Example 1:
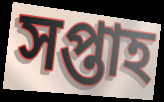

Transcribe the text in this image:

সপ্তাহ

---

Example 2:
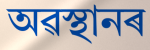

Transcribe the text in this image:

অৱস্থানৰ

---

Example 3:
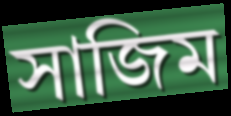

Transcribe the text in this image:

সাজিম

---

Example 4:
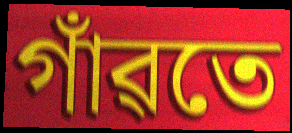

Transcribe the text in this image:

গাঁৱতে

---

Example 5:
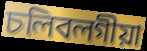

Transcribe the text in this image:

চলিবলগীয়া